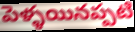
పెళ్ళయినప్పటి